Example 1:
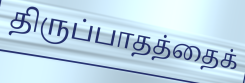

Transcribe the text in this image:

திருப்பாதத்தைக்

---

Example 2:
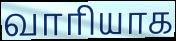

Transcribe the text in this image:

வாரியாக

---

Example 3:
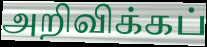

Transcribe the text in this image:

அறிவிக்கப்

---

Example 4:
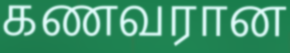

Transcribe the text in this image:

கணவரான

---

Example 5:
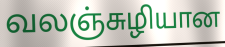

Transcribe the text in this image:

வலஞ்சுழியான